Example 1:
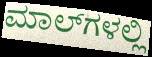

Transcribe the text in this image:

ಮಾಲ್‌ಗಳಲ್ಲಿ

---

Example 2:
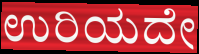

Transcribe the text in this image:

ಉರಿಯದೇ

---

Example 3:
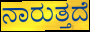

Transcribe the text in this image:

ನಾರುತ್ತದೆ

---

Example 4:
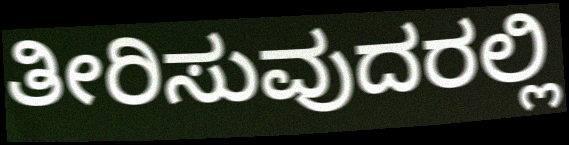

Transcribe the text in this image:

ತೀರಿಸುವುದರಲ್ಲಿ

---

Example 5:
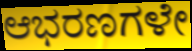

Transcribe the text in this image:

ಆಭರಣಗಳೇ